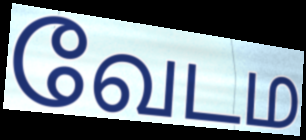
வேடம